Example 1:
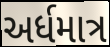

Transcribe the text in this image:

અર્ધમાત્ર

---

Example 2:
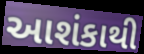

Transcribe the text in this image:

આશંકાથી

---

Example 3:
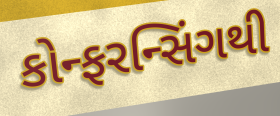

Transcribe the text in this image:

કોન્ફરન્સિંગથી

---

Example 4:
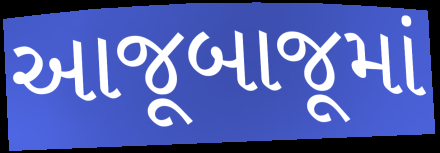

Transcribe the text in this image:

આજૂબાજૂમાં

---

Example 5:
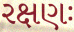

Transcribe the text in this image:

રક્ષણઃ